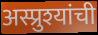
अस्प्रुश्यांची